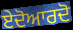
ਏਦੋਆਰਦੋ